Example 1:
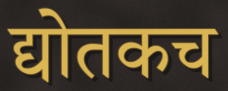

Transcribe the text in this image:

द्योतकच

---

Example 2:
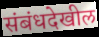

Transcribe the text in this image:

संबंधदेखील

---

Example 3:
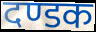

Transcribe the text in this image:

दण्डक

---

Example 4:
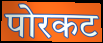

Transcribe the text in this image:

पोरकट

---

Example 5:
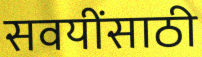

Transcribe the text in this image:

सवयींसाठी